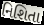
નિશિતા